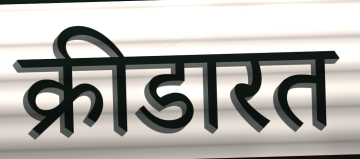
क्रीडारत